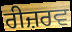
ਰੀਜ਼ਰਵ